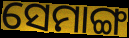
ସେମାଙ୍ଗ